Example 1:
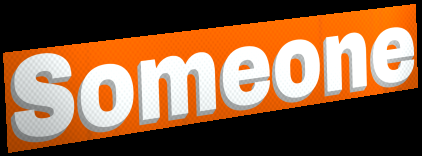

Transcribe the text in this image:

Someone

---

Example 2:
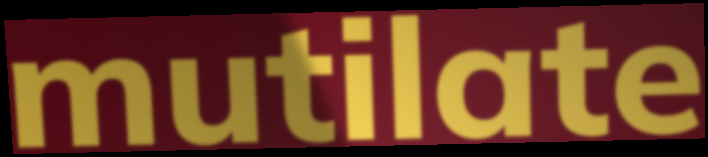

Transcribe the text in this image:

mutilate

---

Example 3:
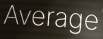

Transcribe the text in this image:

Average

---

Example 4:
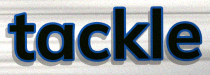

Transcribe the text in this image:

tackle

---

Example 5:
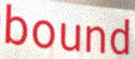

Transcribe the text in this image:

bound